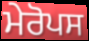
ਮੇਰੋਪਸ